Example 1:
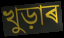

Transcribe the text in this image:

খুড়াৰ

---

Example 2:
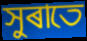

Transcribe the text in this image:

সুৰাতে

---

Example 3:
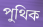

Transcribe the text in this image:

পুথিক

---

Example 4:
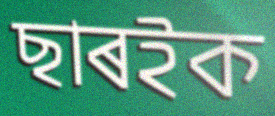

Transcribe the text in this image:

ছাৰইক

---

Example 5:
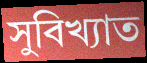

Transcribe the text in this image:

সুবিখ্যাত